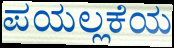
ಪಯಲ್ಲಕೆಯ